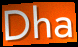
Dha